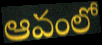
ఆవంలో